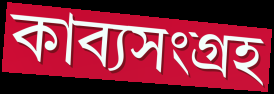
কাব্যসংগ্রহ